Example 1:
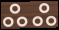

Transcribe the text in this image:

ஃஃ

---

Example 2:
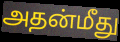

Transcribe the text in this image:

அதன்மீது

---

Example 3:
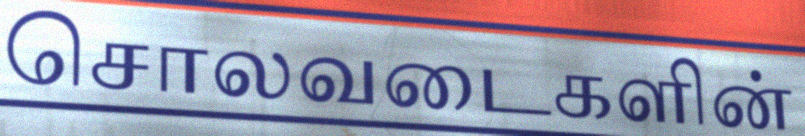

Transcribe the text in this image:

சொலவடைகளின்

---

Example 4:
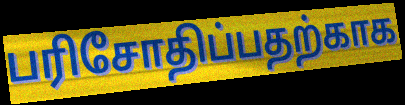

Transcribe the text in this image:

பரிசோதிப்பதற்காக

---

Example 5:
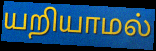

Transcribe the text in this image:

யறியாமல்